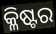
କ୍ଳିଷ୍ଟର